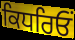
ਕਿਧਰਿਓਂ